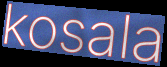
kosala